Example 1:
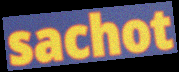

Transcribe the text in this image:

sachot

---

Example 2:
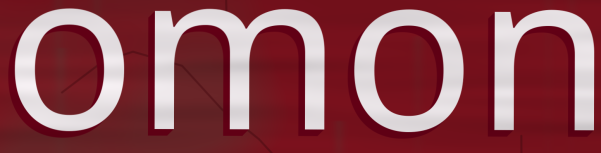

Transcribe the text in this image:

omon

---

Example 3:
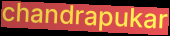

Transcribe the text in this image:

chandrapukar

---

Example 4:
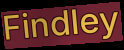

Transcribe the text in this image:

Findley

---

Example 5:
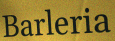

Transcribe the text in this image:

Barleria